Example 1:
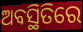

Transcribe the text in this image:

ଅବସ୍ଥିତିରେ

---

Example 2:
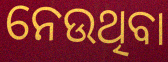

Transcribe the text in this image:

ନେଉଥିବା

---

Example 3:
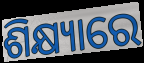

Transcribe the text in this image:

ଶିକ୍ଷ୍ୟାରେ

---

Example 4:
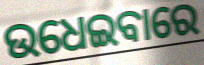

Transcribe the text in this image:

ଉଧେଇବାରେ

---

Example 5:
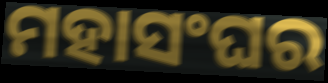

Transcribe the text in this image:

ମହାସଂଘର